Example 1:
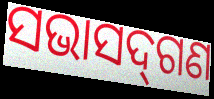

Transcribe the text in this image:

ସଭାସଦ୍‍ଗଣ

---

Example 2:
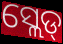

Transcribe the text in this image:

ସ୍ଲେଡ୍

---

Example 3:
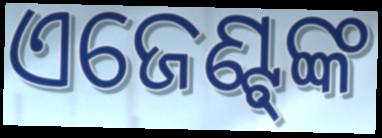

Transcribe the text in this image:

ଏଜେଣ୍ଟ୍‍ଙ୍କ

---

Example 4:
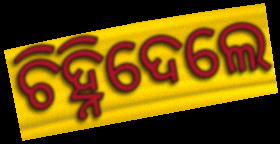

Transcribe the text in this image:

ଚିହ୍ନିଦେଲେ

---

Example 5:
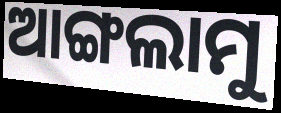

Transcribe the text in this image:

ଆଙ୍ଗଲାମୁ